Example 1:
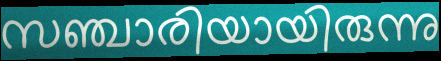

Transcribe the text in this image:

സഞ്ചാരിയായിരുന്നു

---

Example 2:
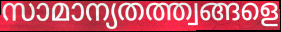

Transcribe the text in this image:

സാമാന്യതത്ത്വങ്ങളെ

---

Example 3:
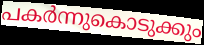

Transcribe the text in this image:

പകർന്നുകൊടുക്കും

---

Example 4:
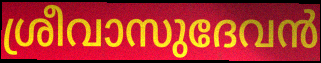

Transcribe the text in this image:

ശ്രീവാസുദേവൻ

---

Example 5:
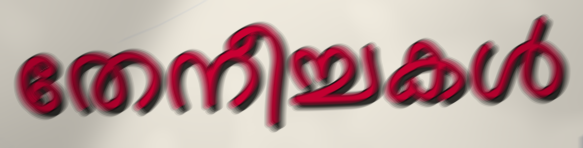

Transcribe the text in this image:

തേനീച്ചകൾ